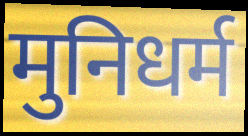
मुनिधर्म